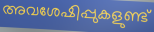
അവശേഷിപ്പുകളുണ്ട്